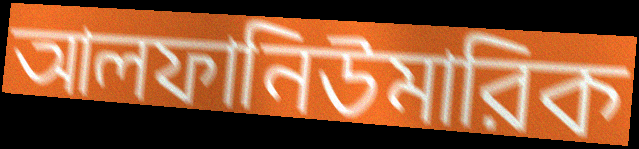
আলফানিউমারিক